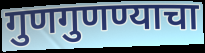
गुणगुणण्याचा